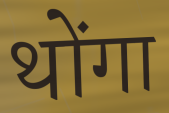
थोंगा